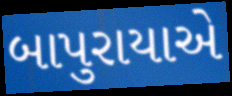
બાપુરાયાએ